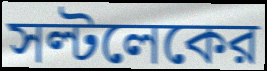
সল্টলেকের